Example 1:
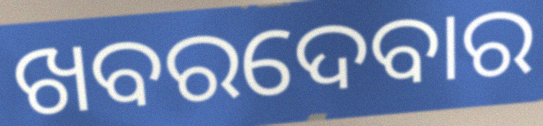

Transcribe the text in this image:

ଖବରଦେବାର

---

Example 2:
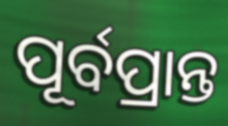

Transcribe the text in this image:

ପୂର୍ବପ୍ରାନ୍ତ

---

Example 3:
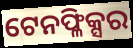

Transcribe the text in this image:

ଟେନଫ୍ଳିକ୍ସର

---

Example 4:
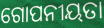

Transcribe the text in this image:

ଗୋପନୀୟତା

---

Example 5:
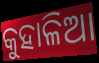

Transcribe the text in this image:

କୁହାଳିଆ